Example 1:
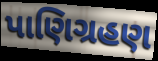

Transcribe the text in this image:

પાણિગ્રહણ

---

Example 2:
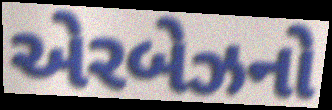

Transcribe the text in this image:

એરબેઝનો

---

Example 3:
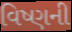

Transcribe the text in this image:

વિષ્ણની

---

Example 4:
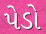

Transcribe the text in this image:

પેડો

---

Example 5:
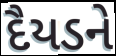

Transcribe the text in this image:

દૈયડને